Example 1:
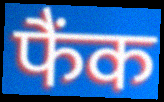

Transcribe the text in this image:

फैंक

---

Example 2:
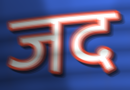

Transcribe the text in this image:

जद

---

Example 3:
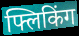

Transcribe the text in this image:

फ्लिकिंग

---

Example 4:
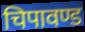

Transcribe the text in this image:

चिपावण्ड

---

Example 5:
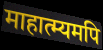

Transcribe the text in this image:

माहात्म्यमपि